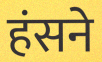
हंसने